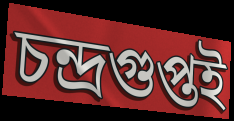
চন্দ্ৰগুপ্তই